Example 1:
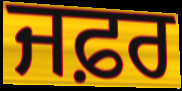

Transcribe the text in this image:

ਜਫ਼ਰ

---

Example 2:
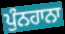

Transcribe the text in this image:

ਪੁੰਨਹਾਨਾ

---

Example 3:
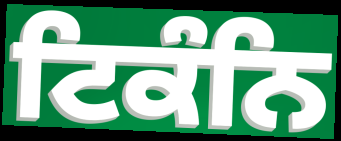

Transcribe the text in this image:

ਟਿਕੰਨਿ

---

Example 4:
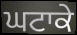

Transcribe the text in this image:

ਘਟਾਕੇ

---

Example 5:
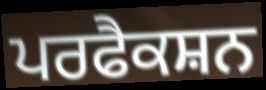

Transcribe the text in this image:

ਪਰਫੈਕਸ਼ਨ